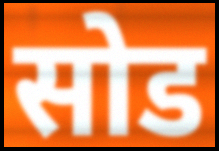
सोड